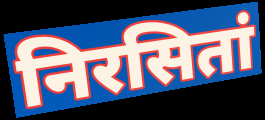
निरसितां